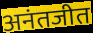
अनंतजीत